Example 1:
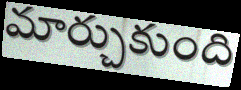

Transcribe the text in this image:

మార్చుకుంది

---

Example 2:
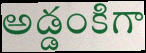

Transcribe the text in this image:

అడ్డంకిగా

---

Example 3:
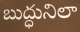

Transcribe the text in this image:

బుద్ధునిలా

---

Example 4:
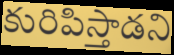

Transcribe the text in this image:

కురిపిస్తాడని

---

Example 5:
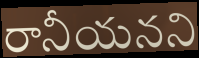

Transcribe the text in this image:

రానీయనని